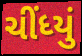
ચીંધ્યું